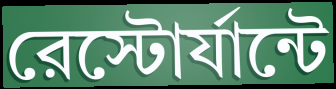
রেস্টোর্যান্টে